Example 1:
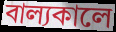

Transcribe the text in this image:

বাল্যকালে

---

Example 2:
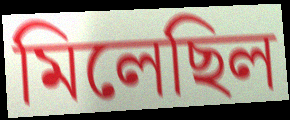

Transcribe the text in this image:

মিলেছিল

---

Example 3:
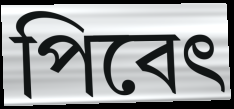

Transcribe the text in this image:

পিবেৎ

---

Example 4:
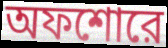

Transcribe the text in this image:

অফশোরে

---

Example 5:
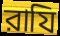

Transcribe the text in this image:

রাযি